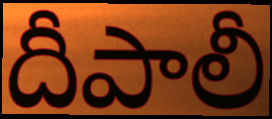
దీపాలీ